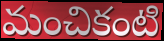
మంచికంటి